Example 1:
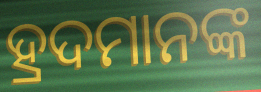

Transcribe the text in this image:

ହ୍ରଦମାନଙ୍କ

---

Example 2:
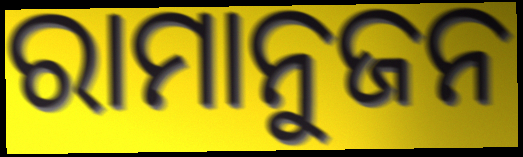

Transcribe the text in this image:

ରାମାନୁଜନ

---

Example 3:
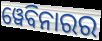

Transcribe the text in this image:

ୱେବିନାରର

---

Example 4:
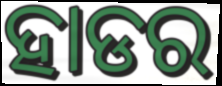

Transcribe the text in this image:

ହାଡର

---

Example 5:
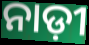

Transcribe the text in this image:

ନାଡ଼ୀ